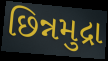
છિન્નમુદ્રા